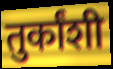
तुर्कांशी